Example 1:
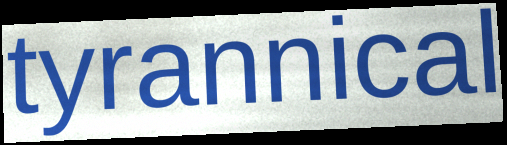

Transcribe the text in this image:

tyrannical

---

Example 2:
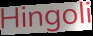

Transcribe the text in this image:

Hingoli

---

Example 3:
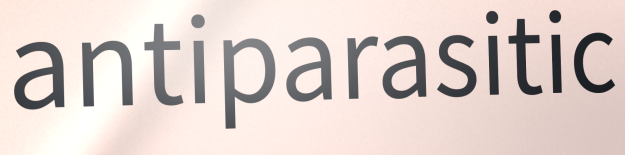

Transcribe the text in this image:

antiparasitic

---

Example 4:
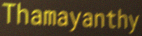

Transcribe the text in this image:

Thamayanthy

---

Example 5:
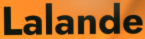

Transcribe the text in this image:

Lalande